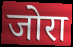
जोरा